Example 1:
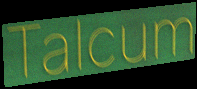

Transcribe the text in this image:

Talcum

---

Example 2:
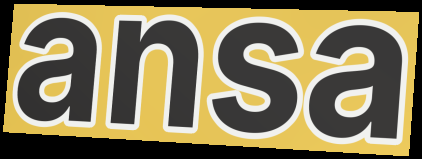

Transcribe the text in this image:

ansa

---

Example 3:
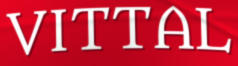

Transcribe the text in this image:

VITTAL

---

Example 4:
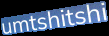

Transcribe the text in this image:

umtshitshi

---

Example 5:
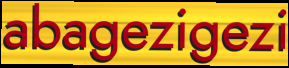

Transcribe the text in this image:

abagezigezi